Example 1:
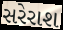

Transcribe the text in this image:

સરેરાશ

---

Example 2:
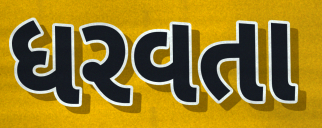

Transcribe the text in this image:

ધરવતા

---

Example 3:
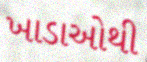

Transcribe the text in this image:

ખાડાઓથી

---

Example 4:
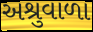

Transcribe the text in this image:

અશ્રુવાળા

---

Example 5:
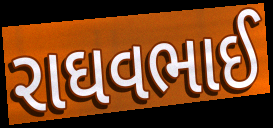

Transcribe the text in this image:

રાઘવભાઈ